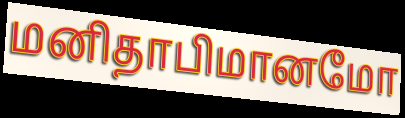
மனிதாபிமானமோ